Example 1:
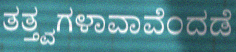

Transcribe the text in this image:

ತತ್ತ್ವಗಳಾವಾವೆಂದಡೆ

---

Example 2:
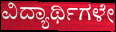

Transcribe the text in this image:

ವಿದ್ಯಾರ್ಥಿಗಳೇ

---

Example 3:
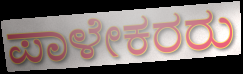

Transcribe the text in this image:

ಪಾಳೇಕರರು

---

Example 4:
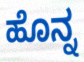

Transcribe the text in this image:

ಹೊನ್ನ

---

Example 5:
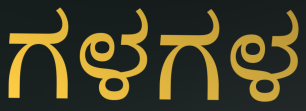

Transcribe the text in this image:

ಗಳಗಳ